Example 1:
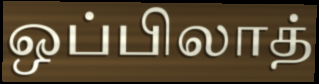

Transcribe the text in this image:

ஒப்பிலாத்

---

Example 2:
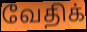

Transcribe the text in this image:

வேதிக்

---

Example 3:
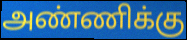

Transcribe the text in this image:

அண்ணிக்கு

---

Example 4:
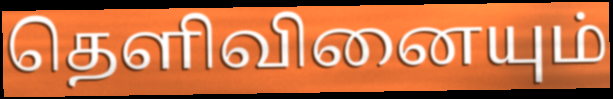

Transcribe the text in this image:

தெளிவினையும்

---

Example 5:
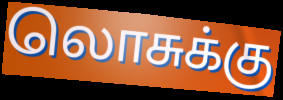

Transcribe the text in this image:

லொசுக்கு